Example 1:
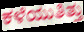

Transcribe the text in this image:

ಕಳೆಯುತಿತ್ತು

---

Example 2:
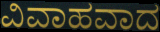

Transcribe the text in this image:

ವಿವಾಹವಾದ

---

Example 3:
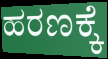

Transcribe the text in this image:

ಹರಣಕ್ಕೆ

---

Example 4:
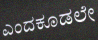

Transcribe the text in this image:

ಎಂದಕೂಡಲೇ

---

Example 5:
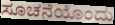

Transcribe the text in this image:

ಸೂಚನೆಯೊಂದು